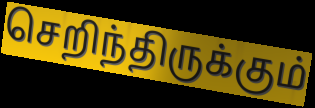
செறிந்திருக்கும்